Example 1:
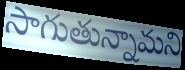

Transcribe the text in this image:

సాగుతున్నామని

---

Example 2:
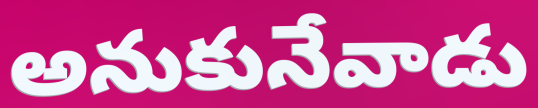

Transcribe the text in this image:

అనుకునేవాడు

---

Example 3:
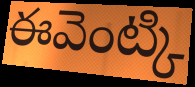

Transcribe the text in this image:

ఈవెంట్కి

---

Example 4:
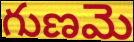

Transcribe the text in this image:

గుణమె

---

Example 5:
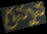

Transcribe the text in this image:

గ్రన్నన